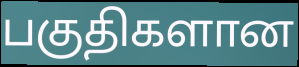
பகுதிகளான